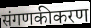
संगणकीकरण